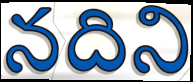
నదిని